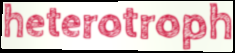
heterotroph